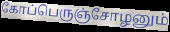
கோப்பெருஞ்சோழனும்